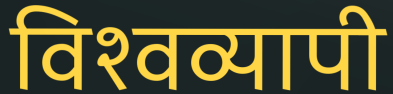
विश्वव्यापी